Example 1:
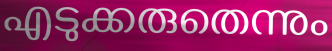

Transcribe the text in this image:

എടുക്കരുതെന്നും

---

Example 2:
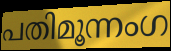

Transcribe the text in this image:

പതിമൂന്നംഗ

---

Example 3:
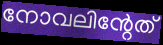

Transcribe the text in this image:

നോവലിന്റേത്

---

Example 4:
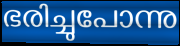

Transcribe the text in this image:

ഭരിച്ചുപോന്നു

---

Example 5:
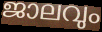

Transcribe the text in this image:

ജാലവും